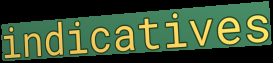
indicatives